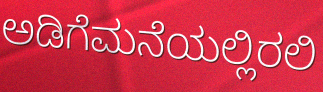
ಅಡಿಗೆಮನೆಯಲ್ಲಿರಲಿ